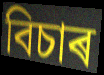
বিচাৰ